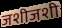
जशीजशी